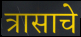
त्रासाचे